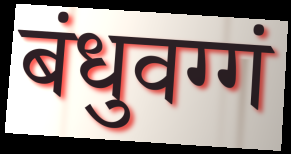
बंधुवग्गं